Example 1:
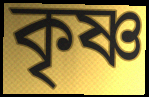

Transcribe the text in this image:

কৃষ্ণ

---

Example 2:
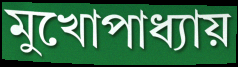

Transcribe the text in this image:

মুখোপাধ্যায়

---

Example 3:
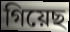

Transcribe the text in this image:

গিয়েছ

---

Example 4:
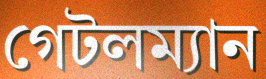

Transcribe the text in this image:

গেটলম্যান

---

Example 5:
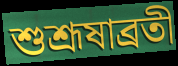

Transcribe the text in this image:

শুশ্রূষাব্রতী